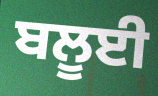
ਬਲੂਈ